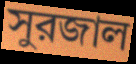
সুরজাল